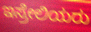
ಇಸ್ರೇಲಿಯರು